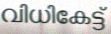
വിധികേട്ട്